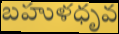
బహుళధృవ